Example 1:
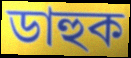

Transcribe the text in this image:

ডাহুক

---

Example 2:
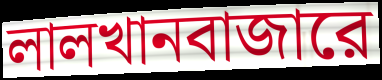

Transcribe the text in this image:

লালখানবাজারে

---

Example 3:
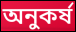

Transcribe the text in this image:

অনুকর্ষ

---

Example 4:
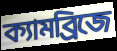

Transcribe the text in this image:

ক্যামব্রিজে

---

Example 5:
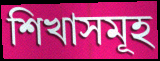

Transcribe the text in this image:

শিখাসমূহ